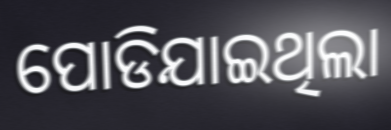
ପୋଡିଯାଇଥିଲା